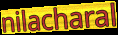
nilacharal